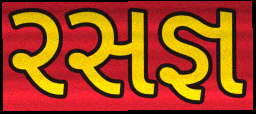
રસજ્ઞ